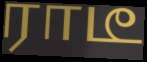
ராடீ